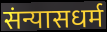
संन्यासधर्म